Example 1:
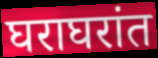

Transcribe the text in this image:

घराघरांत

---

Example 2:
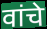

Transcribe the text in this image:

वांचे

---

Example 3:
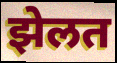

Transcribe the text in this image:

झेलत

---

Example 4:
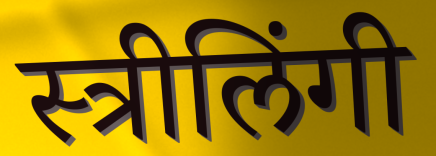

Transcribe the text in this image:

स्त्रीलिंगी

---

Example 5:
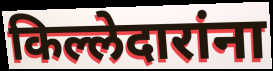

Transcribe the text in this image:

किल्लेदारांना